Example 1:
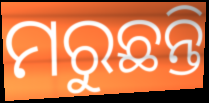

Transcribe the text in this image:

ମରୁଛନ୍ତି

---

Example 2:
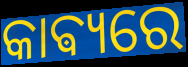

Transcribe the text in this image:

କାଵ୍ଯରେ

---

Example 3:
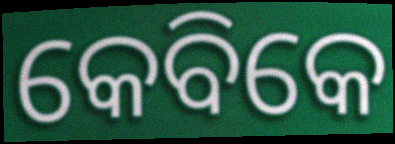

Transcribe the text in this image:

କେବିକେ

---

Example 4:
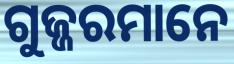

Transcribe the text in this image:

ଗୁଜ୍ଜରମାନେ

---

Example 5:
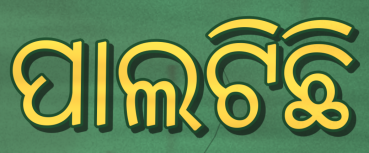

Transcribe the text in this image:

ପାଲଟିଛି